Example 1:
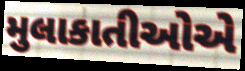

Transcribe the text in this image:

મુલાકાતીઓએ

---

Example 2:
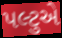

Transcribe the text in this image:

પલ્ટુએ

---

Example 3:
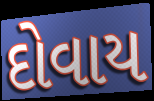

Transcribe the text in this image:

દોવાય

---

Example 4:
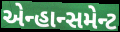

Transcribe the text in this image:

એન્હાન્સમેન્ટ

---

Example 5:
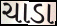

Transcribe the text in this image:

ચાડા